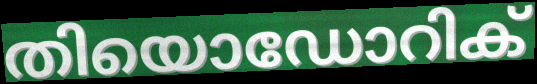
തിയൊഡോറിക്